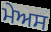
ਮੇਅਸ